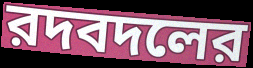
রদবদলের